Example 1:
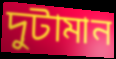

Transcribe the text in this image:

দুটামান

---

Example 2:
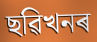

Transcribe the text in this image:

ছৱিখনৰ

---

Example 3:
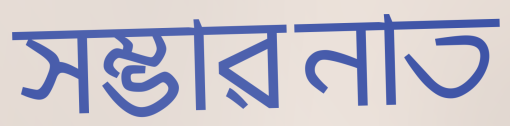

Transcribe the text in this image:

সম্ভাৱনাত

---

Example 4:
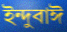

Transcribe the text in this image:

ইন্দুবাঈ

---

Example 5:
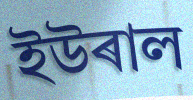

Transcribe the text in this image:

ইউৰাল